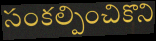
సంకల్పించికొని